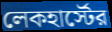
লেকহার্স্টের